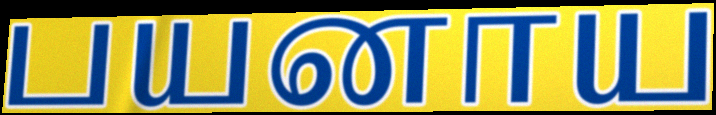
பயனாய